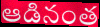
ఆడినంత